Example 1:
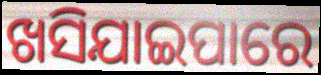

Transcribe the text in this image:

ଖସିଯାଇପାରେ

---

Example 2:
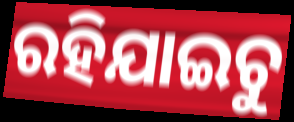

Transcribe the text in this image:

ରହିଯାଇଚୁ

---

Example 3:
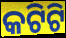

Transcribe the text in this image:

କଟିଟି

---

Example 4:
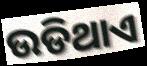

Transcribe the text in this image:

ଉଡିଥାଏ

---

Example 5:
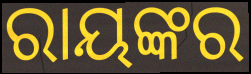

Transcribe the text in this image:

ରାୟଙ୍କର